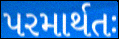
પરમાર્થતઃ